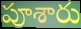
పూశారు